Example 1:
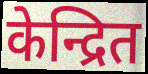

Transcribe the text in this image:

केन्द्रित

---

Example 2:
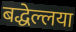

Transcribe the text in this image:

बद्धेल्लया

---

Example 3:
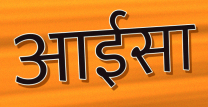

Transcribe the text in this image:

आईसा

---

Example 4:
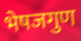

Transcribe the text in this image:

भेषजगुण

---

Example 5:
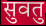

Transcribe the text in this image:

सुवतु